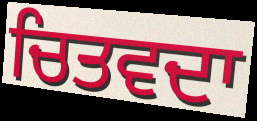
ਚਿਤਵਦਾ